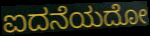
ಐದನೆಯದೋ